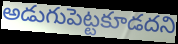
అడుగుపెట్టకూడదని